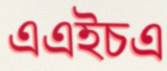
এএইচএ